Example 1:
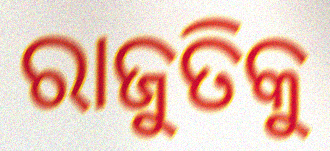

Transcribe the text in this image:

ରାଜୁତିକୁ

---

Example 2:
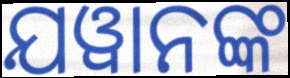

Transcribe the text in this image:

ଯୱାନଙ୍କ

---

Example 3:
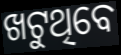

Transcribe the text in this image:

ଖଟୁଥିବେ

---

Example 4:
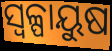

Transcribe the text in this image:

ସ୍ୱଳ୍ପାୟୁଷ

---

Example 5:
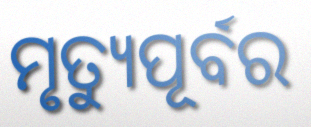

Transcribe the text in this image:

ମୃତ୍ୟୁପୂର୍ବର